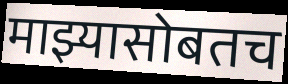
माझ्यासोबतच